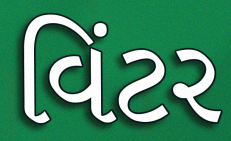
વિંટર